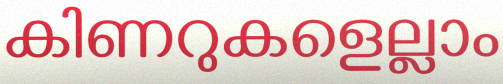
കിണറുകളെല്ലാം